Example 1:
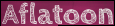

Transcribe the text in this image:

Aflatoon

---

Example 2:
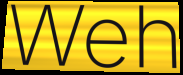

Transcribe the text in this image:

Weh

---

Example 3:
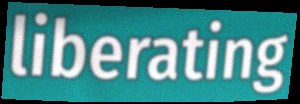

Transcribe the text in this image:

liberating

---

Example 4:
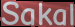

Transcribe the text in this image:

Sakal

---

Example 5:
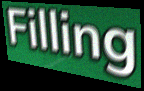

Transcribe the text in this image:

Filling